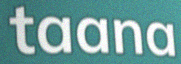
taana